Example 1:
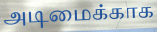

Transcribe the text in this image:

அடிமைக்காக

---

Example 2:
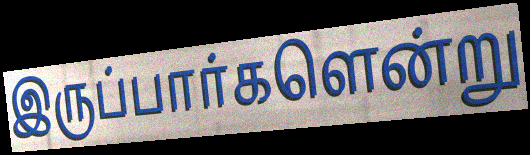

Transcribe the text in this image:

இருப்பார்களென்று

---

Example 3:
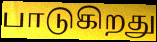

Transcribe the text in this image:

பாடுகிறது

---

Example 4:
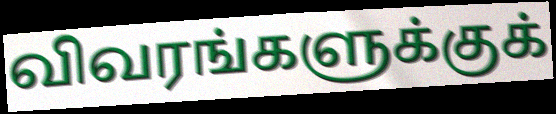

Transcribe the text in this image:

விவரங்களுக்குக்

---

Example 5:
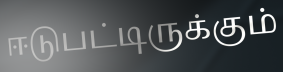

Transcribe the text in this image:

ஈடுபட்டிருக்கும்